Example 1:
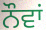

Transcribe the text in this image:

ਨੌਵਾਂ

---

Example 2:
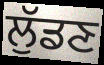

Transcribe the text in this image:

ਲੁੱਡਣ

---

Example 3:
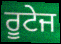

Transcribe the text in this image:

ਰੂਟੇਜ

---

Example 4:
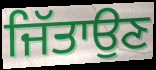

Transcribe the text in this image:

ਜਿੱਤਾਉਣ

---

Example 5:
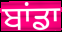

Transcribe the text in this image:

ਬਾਂਡਾ